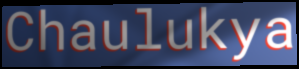
Chaulukya